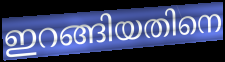
ഇറങ്ങിയതിനെ